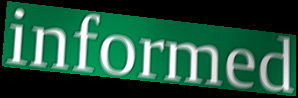
informed